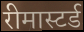
रीमास्टर्ड